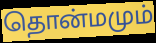
தொன்மமும்